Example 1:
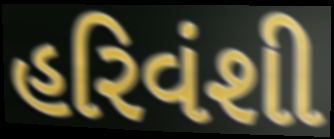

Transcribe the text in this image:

હરિવંશી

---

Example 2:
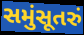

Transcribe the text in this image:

સમુંસૂતરું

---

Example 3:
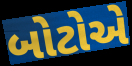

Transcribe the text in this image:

બોટોએ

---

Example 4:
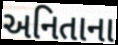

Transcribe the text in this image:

અનિતાના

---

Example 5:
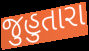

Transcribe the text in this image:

જુહુતારા